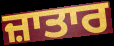
ਜ਼ਾਤਾਰ